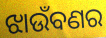
ଝାଉଁବଣର